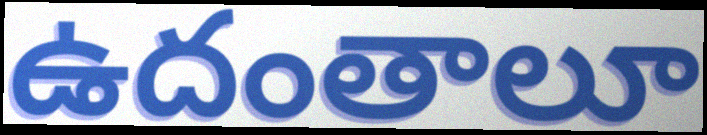
ఉదంతాలూ